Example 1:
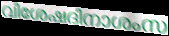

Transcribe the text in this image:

വിശേഷദിനാശംസ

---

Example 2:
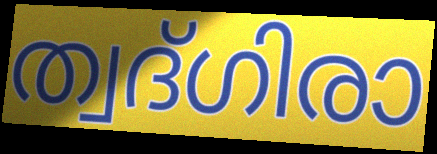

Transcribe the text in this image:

ത്വദ്ഗിരാ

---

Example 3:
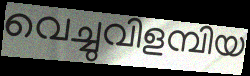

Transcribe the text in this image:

വെച്ചുവിളമ്പിയ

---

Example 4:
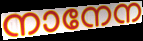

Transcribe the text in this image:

നാനേന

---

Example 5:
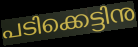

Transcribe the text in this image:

പടിക്കെട്ടിനു